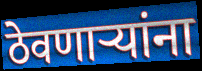
ठेवणार्‍यांना